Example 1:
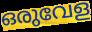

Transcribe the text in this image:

ഒരുവേള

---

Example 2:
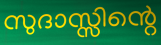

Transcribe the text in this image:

സുദാസ്സിന്റെ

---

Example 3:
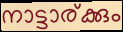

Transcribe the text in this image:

നാട്ടാര്ക്കും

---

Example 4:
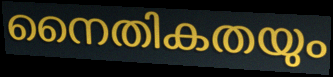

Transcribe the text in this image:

നൈതികതയും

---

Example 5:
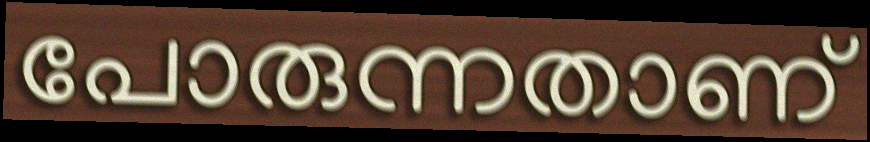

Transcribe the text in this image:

പോരുന്നതാണ്